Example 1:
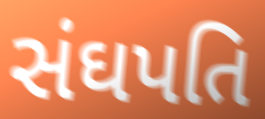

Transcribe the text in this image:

સંઘપતિ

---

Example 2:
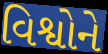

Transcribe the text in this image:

વિશ્વોને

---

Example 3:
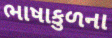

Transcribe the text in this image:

ભાષાકુળના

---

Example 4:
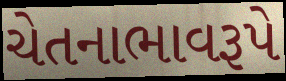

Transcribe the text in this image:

ચેતનાભાવરૂપે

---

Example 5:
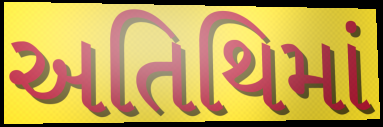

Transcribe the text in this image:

અતિથિમાં